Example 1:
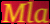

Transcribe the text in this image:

Mla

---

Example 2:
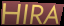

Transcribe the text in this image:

HIRA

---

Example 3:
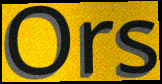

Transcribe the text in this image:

Ors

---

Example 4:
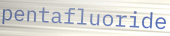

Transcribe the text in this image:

pentafluoride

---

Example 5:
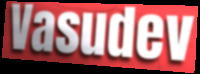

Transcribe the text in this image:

Vasudev